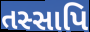
તસ્સાપિ